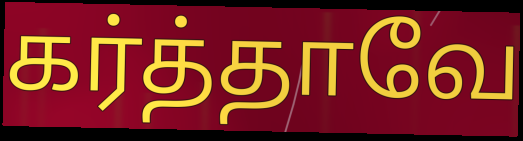
கர்த்தாவே